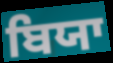
ਬਿਯਾ